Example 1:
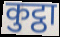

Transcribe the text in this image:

कुट्ठा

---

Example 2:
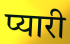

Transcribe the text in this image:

प्यारी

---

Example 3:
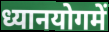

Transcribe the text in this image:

ध्यानयोगमें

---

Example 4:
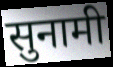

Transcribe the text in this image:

सुनामी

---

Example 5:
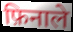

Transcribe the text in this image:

फ़िनाले